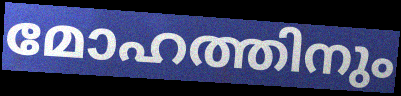
മോഹത്തിനും